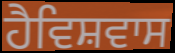
ਹੈਵਿਸ਼ਵਾਸ